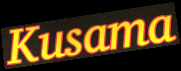
Kusama